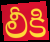
లీకి